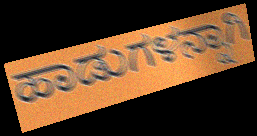
ಹಾಡುಗಳನ್ನಾಗಿ